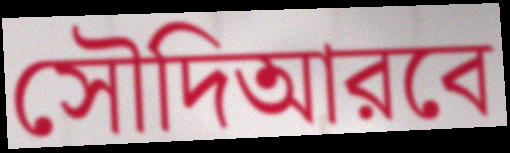
সৌদিআরবে